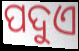
ପଦୁଏ